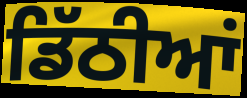
ਡਿੱਠੀਆਂ